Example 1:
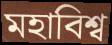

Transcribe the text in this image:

মহাবিশ্ব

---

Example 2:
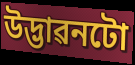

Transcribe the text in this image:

উদ্ভাৱনটো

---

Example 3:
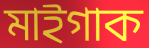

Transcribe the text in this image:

মাইগাক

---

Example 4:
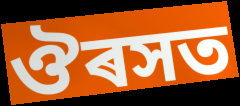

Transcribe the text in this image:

ঔৰসত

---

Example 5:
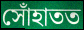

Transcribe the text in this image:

সোঁহাতত